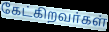
கேட்கிறவர்கள்